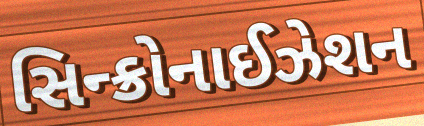
સિન્ક્રોનાઈઝેશન